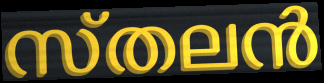
സ്‌തലൻ